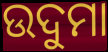
ଉଦୁମା